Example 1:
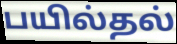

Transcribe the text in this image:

பயில்தல்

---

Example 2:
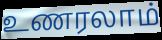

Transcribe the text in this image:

உணரலாம்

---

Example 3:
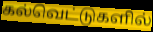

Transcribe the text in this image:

கல்வெட்டுகளில்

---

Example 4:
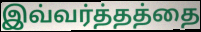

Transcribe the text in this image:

இவ்வர்த்தத்தை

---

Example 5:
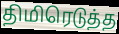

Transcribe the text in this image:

திமிரெடுத்த